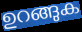
ഉറങ്ങുക